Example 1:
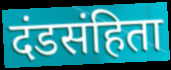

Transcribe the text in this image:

दंडसंहिता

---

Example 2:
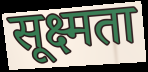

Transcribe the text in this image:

सूक्ष्मता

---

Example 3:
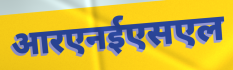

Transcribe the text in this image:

आरएनईएसएल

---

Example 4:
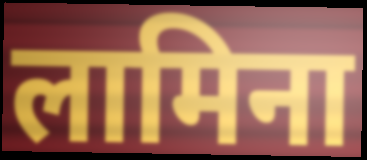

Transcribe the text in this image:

लामिना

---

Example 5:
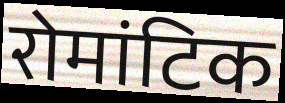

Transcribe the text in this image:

रोमांटिक